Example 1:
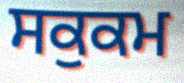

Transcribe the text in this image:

ਸਕੁਕਮ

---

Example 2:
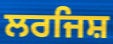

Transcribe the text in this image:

ਲਰਜਿਸ਼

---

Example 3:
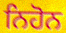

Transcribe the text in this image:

ਨਿਹੋਨ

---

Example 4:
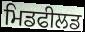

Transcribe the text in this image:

ਮਿਡਫੀਲਡ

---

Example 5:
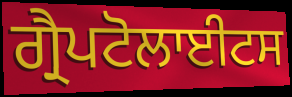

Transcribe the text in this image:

ਗ੍ਰੈਪਟੋਲਾਈਟਸ